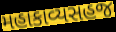
મહાકાવ્યસહજ